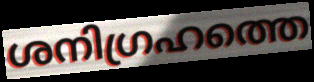
ശനിഗ്രഹത്തെ